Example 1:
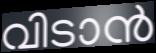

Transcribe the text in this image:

വിടാൻ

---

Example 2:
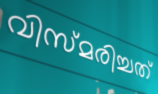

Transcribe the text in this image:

വിസ്മരിച്ചത്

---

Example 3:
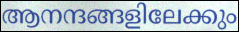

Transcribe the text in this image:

ആനന്ദങ്ങളിലേക്കും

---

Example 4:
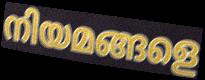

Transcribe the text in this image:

നിയമങ്ങളെ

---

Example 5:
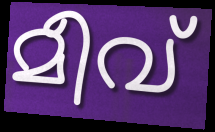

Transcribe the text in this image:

മീവ്